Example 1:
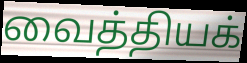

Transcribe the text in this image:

வைத்தியக்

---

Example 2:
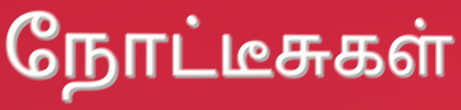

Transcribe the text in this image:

நோட்டீசுகள்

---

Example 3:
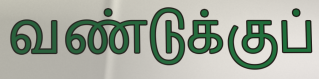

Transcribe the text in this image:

வண்டுக்குப்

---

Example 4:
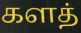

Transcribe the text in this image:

களத்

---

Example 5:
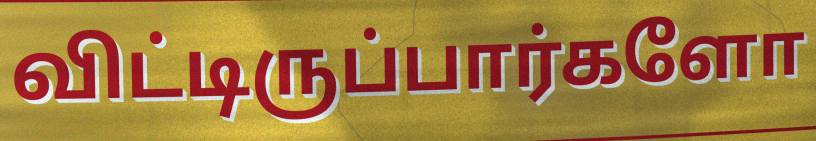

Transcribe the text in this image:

விட்டிருப்பார்களோ